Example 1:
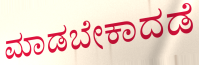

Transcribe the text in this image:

ಮಾಡಬೇಕಾದಡೆ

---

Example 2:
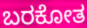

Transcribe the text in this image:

ಬರಕೋತ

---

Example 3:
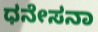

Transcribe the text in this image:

ಧನೇಸನಾ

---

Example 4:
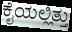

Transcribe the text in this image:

ಕೈಯಲ್ಲಿತ್ತು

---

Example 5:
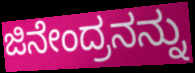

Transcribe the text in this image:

ಜಿನೇಂದ್ರನನ್ನು